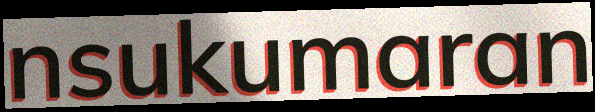
nsukumaran